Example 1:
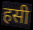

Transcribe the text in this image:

हसी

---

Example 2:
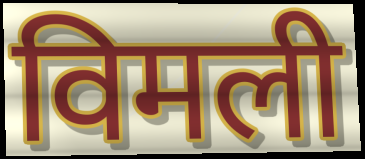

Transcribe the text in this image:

विमली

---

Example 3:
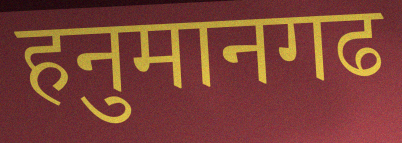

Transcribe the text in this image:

हनुमानगढ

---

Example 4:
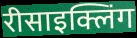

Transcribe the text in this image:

रीसाइक्लिंग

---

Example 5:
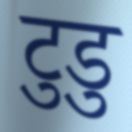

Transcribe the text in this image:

टुडु